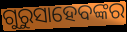
ଗୁରୁସାହେବଙ୍କର